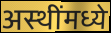
अस्थींमध्ये